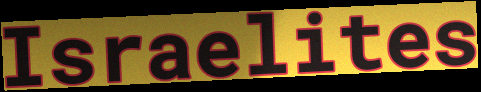
Israelites